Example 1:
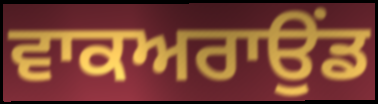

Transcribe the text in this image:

ਵਾਕਅਰਾਉਂਡ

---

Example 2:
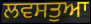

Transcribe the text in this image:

ਲਵਸਤੁਆ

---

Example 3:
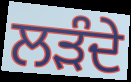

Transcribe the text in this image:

ਲੜੰਦੇ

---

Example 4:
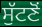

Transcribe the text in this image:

ਸੁੱਟਣੋਂ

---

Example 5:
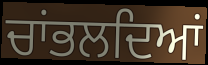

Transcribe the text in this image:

ਚਾਂਭਲਦਿਆਂ